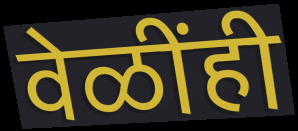
वेळींही